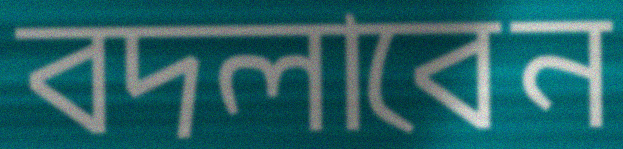
বদলাবেন